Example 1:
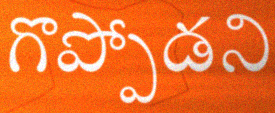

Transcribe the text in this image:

గొప్పోడని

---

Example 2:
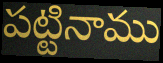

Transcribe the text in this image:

పట్టినాము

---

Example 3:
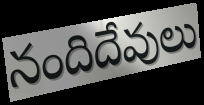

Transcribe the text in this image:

నందిదేవులు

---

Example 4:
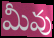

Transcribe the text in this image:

మీవు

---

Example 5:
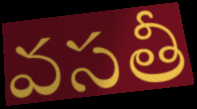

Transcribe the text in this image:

వసతీ